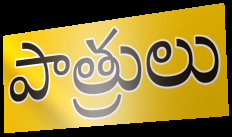
పాత్రులు